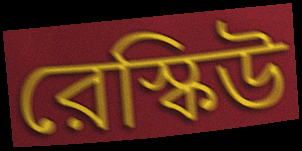
রেস্কিউ